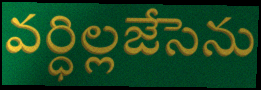
వర్ధిల్లజేసెను